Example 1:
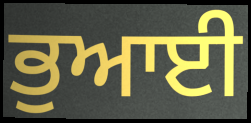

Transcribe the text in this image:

ਭੁਆਈ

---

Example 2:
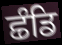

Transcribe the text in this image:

ਛੰਡਿ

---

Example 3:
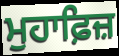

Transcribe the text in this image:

ਮੁਹਾਫ਼ਿਜ਼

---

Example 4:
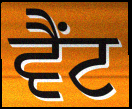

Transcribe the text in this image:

ਵੈਂਟ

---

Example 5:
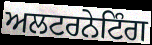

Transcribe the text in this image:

ਅਲਟਰਨੇਟਿੰਗ